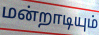
மன்றாடியும்